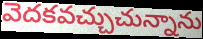
వెదకవచ్చుచున్నాను